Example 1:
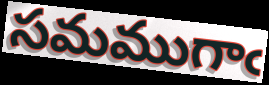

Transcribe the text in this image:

సమముగాఁ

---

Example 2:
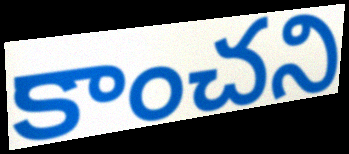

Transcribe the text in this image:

కాంచని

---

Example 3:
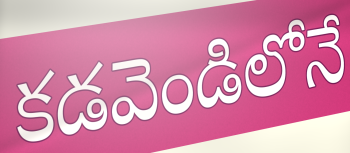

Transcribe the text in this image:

కడవెండిలోనే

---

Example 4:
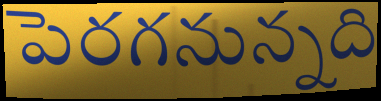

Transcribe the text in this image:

పెరగనున్నది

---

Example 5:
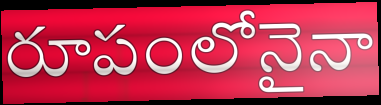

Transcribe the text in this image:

రూపంలోనైనా